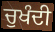
ਚੁਖੰਦੀ